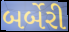
બર્બેરી